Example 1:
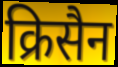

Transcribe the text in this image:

क्रिसैन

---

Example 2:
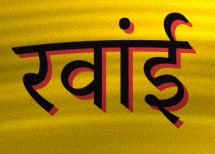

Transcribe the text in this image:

रवांई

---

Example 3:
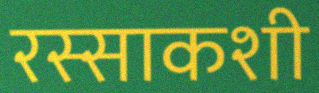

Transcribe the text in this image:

रस्साकशी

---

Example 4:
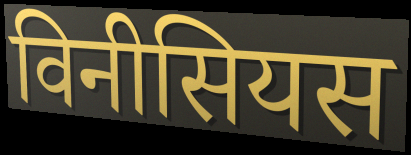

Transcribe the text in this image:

विनीसियस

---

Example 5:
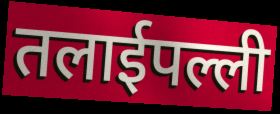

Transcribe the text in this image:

तलाईपल्ली